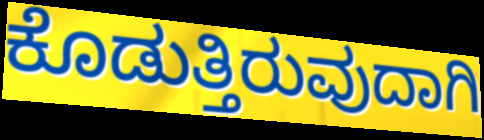
ಕೊಡುತ್ತಿರುವುದಾಗಿ